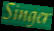
Singer